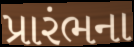
પ્રારંભના